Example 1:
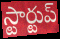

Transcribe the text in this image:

స్టార్టుప్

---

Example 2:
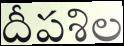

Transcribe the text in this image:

దీపశిల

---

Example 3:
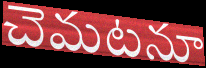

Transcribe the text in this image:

చెమటనూ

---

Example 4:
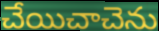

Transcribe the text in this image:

చేయిచాచెను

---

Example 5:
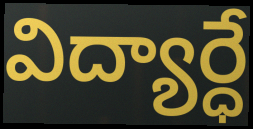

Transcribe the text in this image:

విద్యార్ధే